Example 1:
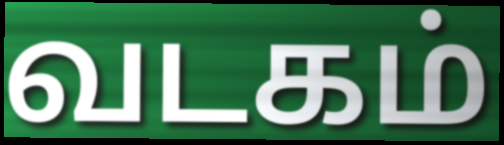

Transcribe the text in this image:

வடகம்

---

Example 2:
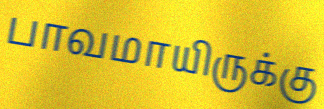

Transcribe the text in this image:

பாவமாயிருக்கு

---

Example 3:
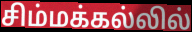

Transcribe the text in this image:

சிம்மக்கல்லில்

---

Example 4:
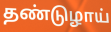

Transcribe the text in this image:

தண்டுழாய்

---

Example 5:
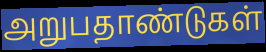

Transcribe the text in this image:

அறுபதாண்டுகள்